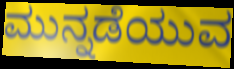
ಮುನ್ನಡೆಯುವ